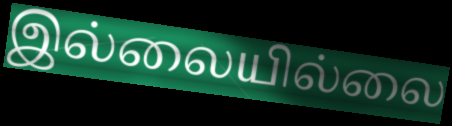
இல்லையில்லை